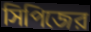
সিপিজের